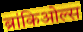
ब्रांकिओल्स